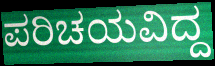
ಪರಿಚಯವಿದ್ದ